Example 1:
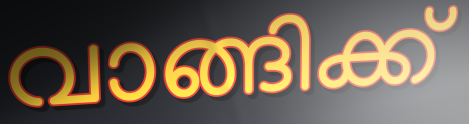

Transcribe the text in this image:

വാങ്ങിക്ക്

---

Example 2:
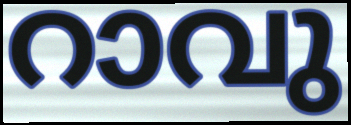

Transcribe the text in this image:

റാവു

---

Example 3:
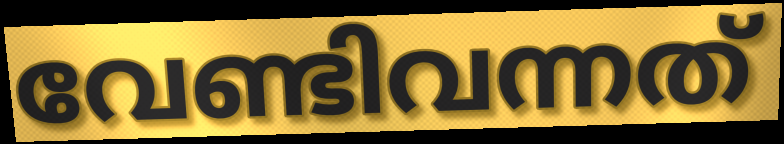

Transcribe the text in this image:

വേണ്ടിവന്നത്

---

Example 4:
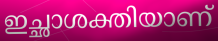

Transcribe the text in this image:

ഇച്ഛാശക്തിയാണ്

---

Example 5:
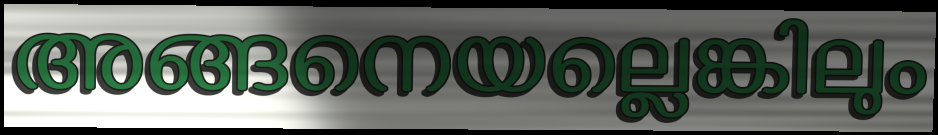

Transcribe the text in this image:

അങ്ങനെയല്ലെങ്കിലും